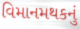
વિમાનમથકનું